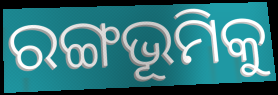
ରଙ୍ଗଭୂମିକୁ